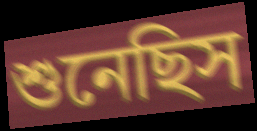
শুনেছিস